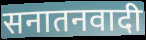
सनातनवादी